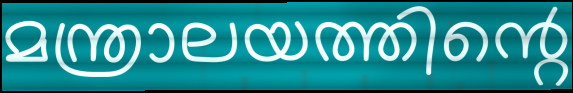
മന്ത്രാലയത്തിന്റെ